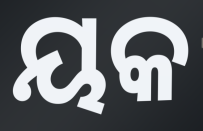
ୟକ